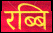
रब्बि